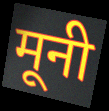
मूनी